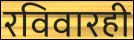
रविवारही